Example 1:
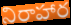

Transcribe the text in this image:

నిరాహార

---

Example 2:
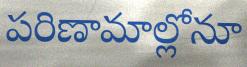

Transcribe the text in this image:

పరిణామాల్లోనూ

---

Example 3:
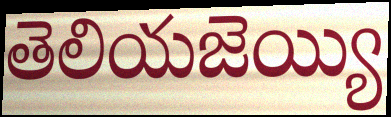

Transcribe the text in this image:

తెలియజెయ్యి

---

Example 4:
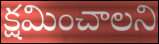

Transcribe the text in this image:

క్షమించాలని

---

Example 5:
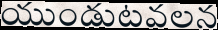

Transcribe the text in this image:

యుండుటవలన